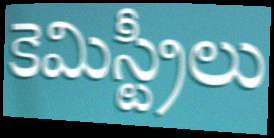
కెమిస్ట్రీలు